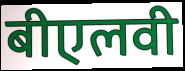
बीएलवी